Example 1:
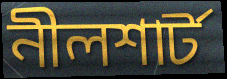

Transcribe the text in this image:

নীলশার্ট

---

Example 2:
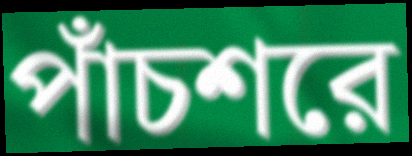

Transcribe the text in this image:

পাঁচশরে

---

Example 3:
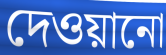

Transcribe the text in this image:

দেওয়ানো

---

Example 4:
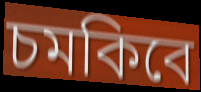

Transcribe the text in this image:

চমকিবে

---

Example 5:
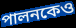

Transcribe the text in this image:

পালনকেও